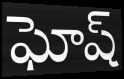
ఘోష్